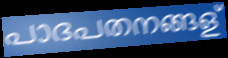
പാദപതനങ്ങള്